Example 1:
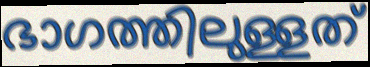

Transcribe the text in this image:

ഭാഗത്തിലുള്ളത്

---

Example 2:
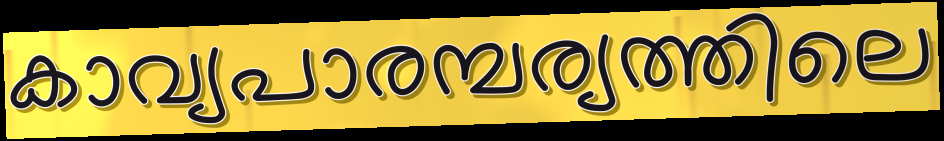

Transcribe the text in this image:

കാവ്യപാരമ്പര്യത്തിലെ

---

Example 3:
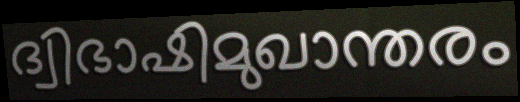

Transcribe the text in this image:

ദ്വിഭാഷിമുഖാന്തരം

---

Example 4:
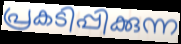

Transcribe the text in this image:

പ്രകടിപ്പിക്കുന്ന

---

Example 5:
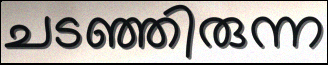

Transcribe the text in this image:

ചടഞ്ഞിരുന്ന